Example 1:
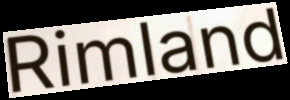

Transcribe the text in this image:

Rimland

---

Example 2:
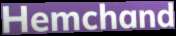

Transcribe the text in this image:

Hemchand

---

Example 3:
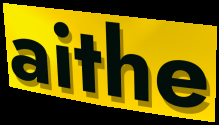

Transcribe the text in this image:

aithe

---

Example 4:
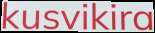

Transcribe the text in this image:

kusvikira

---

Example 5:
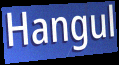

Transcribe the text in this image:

Hangul